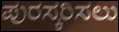
ಪುರಸ್ಕರಿಸಲು